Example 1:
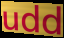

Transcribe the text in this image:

udd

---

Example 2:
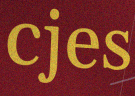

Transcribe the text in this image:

cjes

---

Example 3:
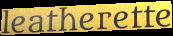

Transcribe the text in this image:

leatherette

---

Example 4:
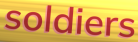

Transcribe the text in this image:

soldiers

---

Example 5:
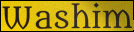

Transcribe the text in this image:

Washim